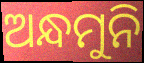
ଅନ୍ଧମୁନି